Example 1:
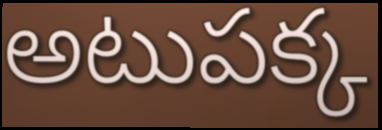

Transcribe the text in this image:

అటుపక్క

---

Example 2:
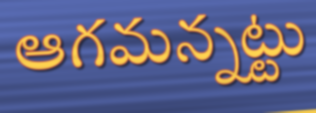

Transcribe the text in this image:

ఆగమన్నట్టు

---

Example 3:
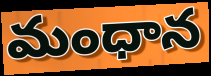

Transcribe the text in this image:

మంధాన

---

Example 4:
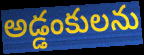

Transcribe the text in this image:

అడ్డంకులను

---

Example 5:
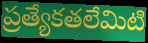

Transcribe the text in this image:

ప్రత్యేకతలేమిటి